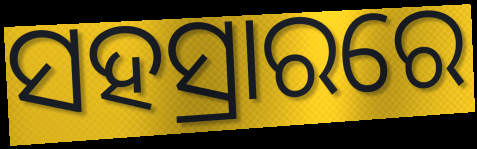
ସହସ୍ରାରରେ